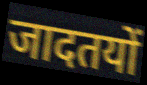
जादतयों